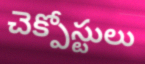
చెక్పోస్టులు